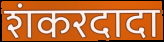
शंकरदादा